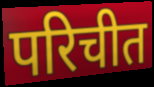
परिचीत